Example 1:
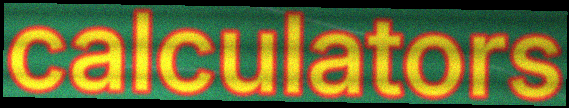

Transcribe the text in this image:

calculators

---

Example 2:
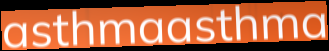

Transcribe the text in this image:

asthmaasthma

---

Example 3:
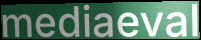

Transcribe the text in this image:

mediaeval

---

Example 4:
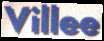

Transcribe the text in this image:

Villee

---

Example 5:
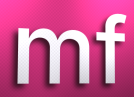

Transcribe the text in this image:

mf